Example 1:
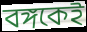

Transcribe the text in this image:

বঙ্গকেই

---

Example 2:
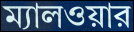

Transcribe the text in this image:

ম্যালওয়ার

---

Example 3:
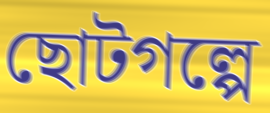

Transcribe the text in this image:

ছোটগল্পে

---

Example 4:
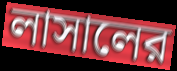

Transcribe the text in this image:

লাসালের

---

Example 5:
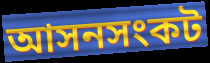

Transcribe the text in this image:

আসনসংকট